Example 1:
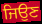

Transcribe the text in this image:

ਜਿਉਣ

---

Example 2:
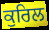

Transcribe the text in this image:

ਕੁਰਿਲ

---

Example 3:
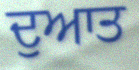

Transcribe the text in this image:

ਦੁਆਤ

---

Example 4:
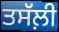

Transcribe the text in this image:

ਤਸੱਲ਼ੀ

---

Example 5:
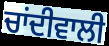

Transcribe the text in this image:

ਚਾਂਦੀਵਾਲੀ